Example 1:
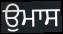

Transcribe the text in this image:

ਉਮਾਸ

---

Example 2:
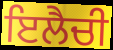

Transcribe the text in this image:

ਇਲੈਚੀ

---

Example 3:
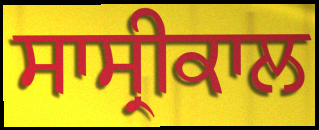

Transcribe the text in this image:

ਸਾਸ੍ਰੀਕਾਲ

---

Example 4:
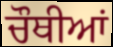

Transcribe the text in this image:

ਚੌਥੀਆਂ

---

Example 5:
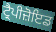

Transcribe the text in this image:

ਟ੍ਰੈਪੀਜ਼ੋਇਡ